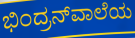
ಭಿಂದ್ರನ್‌ವಾಲೆಯ